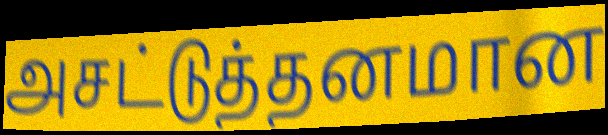
அசட்டுத்தனமான